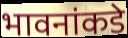
भावनांकडे